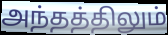
அந்தத்திலும்